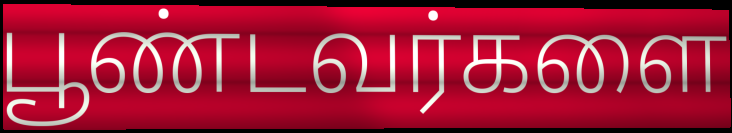
பூண்டவர்களை